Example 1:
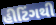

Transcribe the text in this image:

હીટિંગથી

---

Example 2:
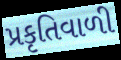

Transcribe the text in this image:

પ્રકૃતિવાળી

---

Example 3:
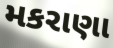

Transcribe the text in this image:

મકરાણા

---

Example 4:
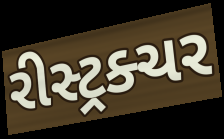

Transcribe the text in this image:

રીસ્ટ્રક્ચર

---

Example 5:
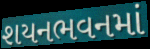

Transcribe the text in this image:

શયનભવનમાં